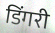
डिंगरी